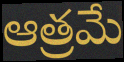
ఆత్రమే